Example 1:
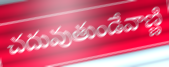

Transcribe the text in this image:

చదువుతుండేవాణ్ణి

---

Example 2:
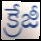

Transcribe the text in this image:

క్రేజీ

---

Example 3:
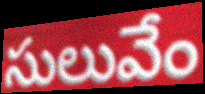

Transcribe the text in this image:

సులువేం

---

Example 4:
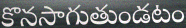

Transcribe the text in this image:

కొనసాగుతుండటం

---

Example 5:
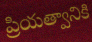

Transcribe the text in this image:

ప్రియత్వానికి